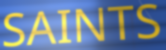
SAINTS